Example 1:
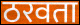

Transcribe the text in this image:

ठरवता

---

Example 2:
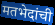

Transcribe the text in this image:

मतभेदांची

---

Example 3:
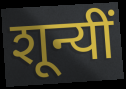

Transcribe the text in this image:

शून्यीं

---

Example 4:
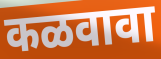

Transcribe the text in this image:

कळवावा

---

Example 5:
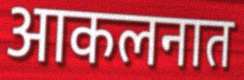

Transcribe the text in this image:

आकलनात